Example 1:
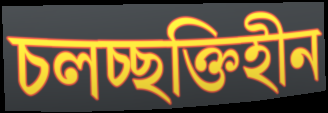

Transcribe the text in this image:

চলচ্ছক্তিহীন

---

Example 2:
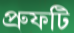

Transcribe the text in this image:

প্রুফটি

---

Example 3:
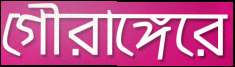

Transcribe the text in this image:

গৌরাঙ্গেরে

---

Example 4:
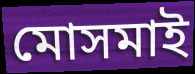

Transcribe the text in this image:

মোসমাই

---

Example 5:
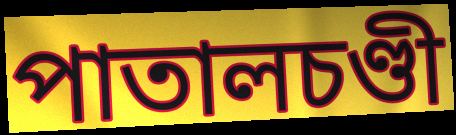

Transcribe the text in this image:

পাতালচণ্ডী